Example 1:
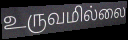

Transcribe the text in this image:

உருவமில்லை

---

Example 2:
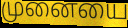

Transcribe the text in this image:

முனையை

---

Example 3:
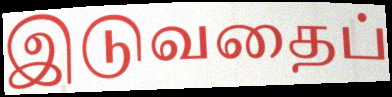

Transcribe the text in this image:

இடுவதைப்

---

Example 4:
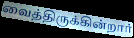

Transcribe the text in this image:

வைத்திருக்கின்றார்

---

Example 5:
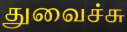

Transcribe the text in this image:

துவைச்சு